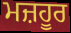
ਮਜ਼ਹੂਰ